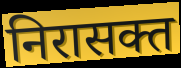
निरासक्त